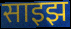
साइझ